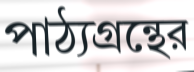
পাঠ্যগ্রন্থের